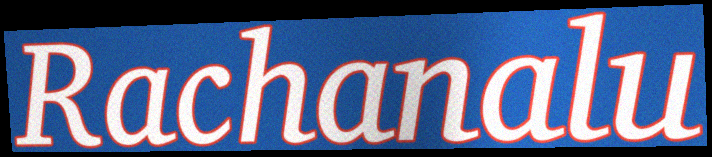
Rachanalu